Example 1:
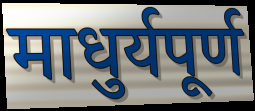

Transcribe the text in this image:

माधुर्यपूर्ण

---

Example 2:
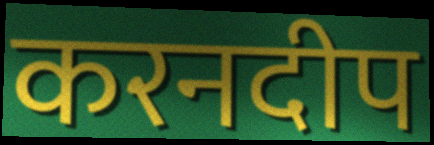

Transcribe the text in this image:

करनदीप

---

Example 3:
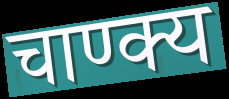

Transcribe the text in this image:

चाण्क्य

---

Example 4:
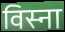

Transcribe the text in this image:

विस्ना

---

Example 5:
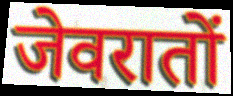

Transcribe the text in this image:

जेवरातों